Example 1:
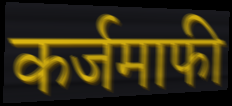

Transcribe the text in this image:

कर्जमाफी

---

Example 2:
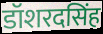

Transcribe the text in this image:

डॉशरदसिंह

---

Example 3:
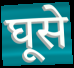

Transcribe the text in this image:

घूसे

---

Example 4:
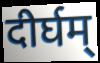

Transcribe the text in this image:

दीर्घम्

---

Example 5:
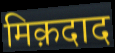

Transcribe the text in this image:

मिक़दाद